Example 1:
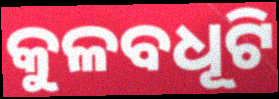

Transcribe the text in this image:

କୁଳବଧୂଟି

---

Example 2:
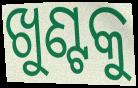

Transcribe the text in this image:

ଖୁଣ୍ଟକୁ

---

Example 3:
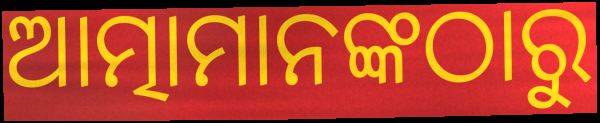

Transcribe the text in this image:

ଆତ୍ମାମାନଙ୍କଠାରୁ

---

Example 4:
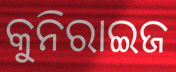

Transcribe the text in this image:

କୁନିରାଇଜ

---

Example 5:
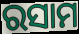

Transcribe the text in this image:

ରସାମ